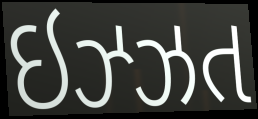
ઇઝ્ઝત